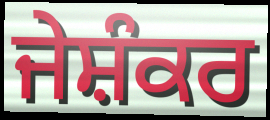
ਜੇਸ਼ੰਕਰ